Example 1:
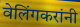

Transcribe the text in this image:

वेलिंगकरांनी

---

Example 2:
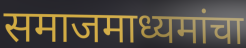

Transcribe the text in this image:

समाजमाध्यमांचा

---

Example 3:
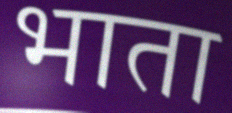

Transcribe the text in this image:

भाता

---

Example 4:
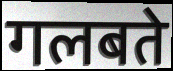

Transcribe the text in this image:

गलबते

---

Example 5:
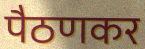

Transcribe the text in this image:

पैठणकर